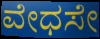
ವೇಧಸೇ